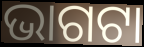
ଭାଗଟା